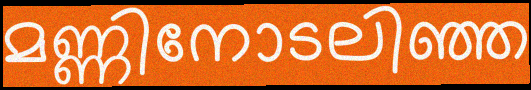
മണ്ണിനോടലിഞ്ഞ